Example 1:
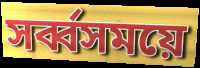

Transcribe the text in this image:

সর্ব্বসময়ে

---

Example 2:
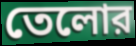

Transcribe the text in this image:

তেলোর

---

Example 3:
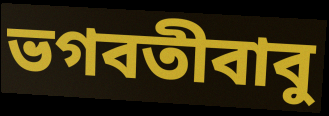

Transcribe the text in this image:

ভগবতীবাবু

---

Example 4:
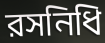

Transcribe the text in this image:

রসনিধি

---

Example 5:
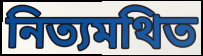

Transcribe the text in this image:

নিত্যমথিত